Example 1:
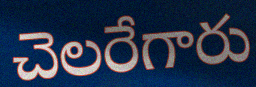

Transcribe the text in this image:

చెలరేగారు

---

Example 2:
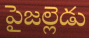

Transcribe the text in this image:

పైజల్లెడు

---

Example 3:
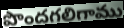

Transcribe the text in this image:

పొందగలిగాము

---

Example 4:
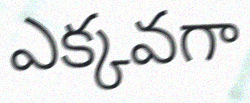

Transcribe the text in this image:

ఎక్కవగా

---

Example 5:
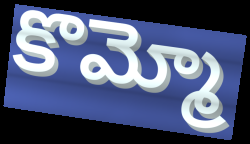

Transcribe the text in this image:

కొమ్మో